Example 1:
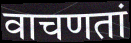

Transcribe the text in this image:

वाचणतां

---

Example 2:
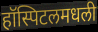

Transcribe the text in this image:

हॉस्पिटलमधली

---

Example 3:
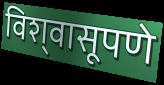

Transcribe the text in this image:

विश्वासूपणे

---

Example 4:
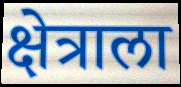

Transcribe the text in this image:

क्षेत्राला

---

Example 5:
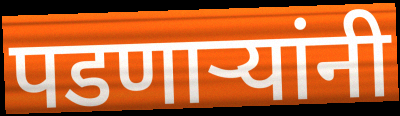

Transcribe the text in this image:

पडणाऱ्यांनी